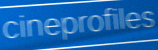
cineprofiles